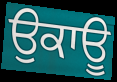
ਉਕਾਊ